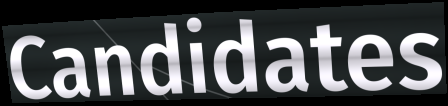
Candidates